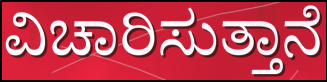
ವಿಚಾರಿಸುತ್ತಾನೆ